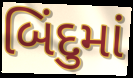
બિંદુમાં